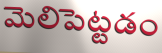
మెలిపెట్టడం